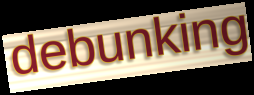
debunking